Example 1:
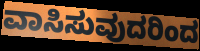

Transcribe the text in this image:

ವಾಸಿಸುವುದರಿಂದ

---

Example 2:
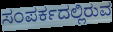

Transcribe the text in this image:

ಸಂಪರ್ಕದಲ್ಲಿರುವ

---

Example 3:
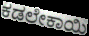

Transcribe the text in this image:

ಕಡಲೇಕಾಯಿ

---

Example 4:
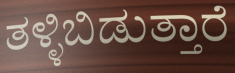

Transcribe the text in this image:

ತಳ್ಳಿಬಿಡುತ್ತಾರೆ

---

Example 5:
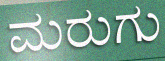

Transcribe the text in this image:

ಮರುಗು